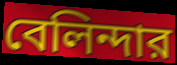
বেলিন্দার